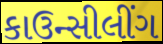
કાઉન્સીલીંગ